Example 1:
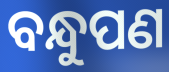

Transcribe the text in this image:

ବନ୍ଧୁପଣ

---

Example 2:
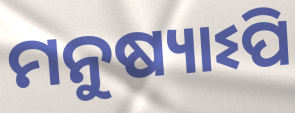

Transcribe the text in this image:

ମନୁଷ୍ୟାଽପି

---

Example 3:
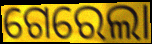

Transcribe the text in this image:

ଗେରେଲା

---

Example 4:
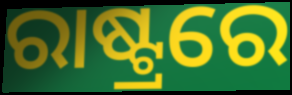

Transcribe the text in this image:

ରାଷ୍ଟ୍ରରେ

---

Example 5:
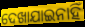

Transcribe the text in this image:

ଦେଖାଯାଇନାହିଁ